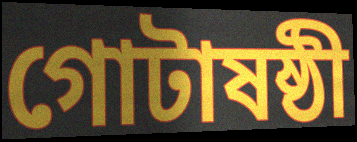
গোটাষষ্ঠী